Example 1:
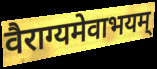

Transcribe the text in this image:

वैराग्यमेवाभयम्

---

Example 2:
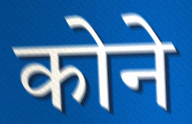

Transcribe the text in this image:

कोने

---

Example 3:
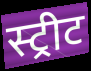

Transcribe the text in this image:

स्ट्रीट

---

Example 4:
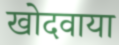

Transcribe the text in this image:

खोदवाया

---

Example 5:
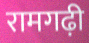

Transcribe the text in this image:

रामगढ़ी